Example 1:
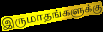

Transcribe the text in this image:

இருமாதங்களுக்கு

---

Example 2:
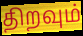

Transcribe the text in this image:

திறவும்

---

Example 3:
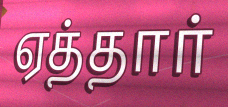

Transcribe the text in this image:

ஏத்தார்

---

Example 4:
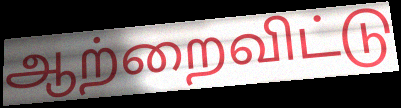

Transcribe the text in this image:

ஆற்றைவிட்டு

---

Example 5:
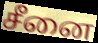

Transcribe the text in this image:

சீனை